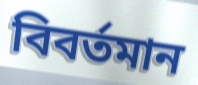
বিবর্তমান